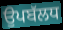
ਉਪਬੱਲਧ